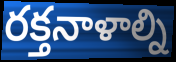
రక్తనాళాల్ని